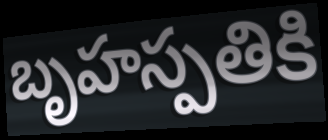
బృహస్పతికి